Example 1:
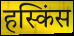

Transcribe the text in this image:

हस्किंस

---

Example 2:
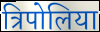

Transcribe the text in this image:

त्रिपोलिया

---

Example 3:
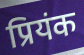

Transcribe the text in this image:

प्रियंक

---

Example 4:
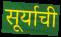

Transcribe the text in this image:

सूर्याची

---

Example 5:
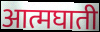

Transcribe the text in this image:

आत्मघाती